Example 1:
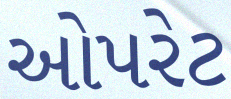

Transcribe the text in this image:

ઓપરેટ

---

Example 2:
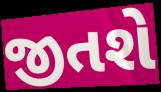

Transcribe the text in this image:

જીતશે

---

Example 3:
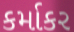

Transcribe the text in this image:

કર્માકર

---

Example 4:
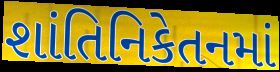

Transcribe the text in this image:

શાંતિનિકેતનમાં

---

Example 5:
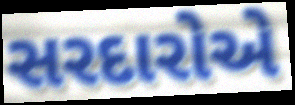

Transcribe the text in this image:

સરદારોએ